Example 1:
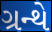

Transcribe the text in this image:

ગ્રન્થે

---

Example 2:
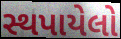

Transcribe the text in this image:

સ્થપાયેલો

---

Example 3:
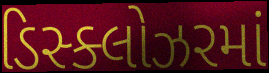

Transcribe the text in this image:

ડિસ્ક્લોઝરમાં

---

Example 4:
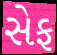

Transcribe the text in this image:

સેફ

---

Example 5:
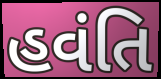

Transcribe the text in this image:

હવંતિ